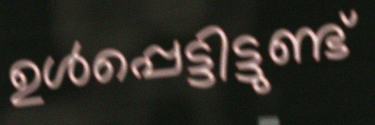
ഉൾപ്പെട്ടിട്ടുണ്ട്